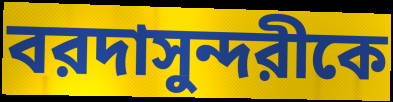
বরদাসুন্দরীকে